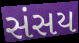
સંસય